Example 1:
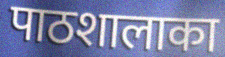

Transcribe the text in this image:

पाठशालाका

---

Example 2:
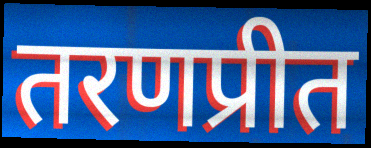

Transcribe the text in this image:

तरणप्रीत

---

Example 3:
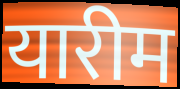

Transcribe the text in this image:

यारीम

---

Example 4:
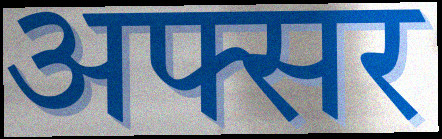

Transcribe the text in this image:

अफ्सर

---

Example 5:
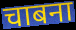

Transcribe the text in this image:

चाबना